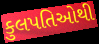
કુલપતિઓથી